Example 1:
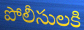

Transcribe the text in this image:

పోలీసులకి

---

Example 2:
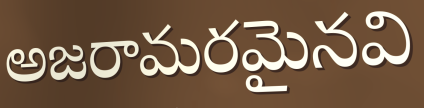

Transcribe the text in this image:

అజరామరమైనవి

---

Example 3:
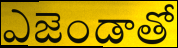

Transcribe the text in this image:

ఎజెండాతో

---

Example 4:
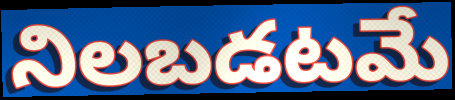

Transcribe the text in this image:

నిలబడటమే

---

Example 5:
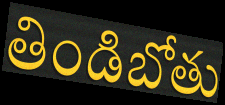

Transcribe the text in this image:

తిండిబోతు